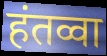
हंतव्वा